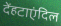
देंहटाएंदिल